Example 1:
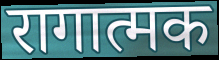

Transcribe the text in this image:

रागात्मक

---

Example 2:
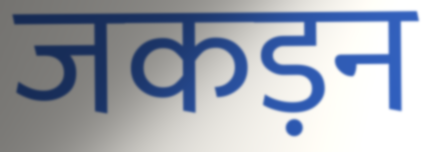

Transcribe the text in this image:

जकड़न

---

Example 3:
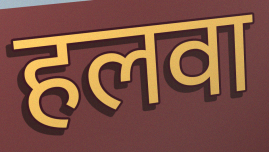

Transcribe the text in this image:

हलवा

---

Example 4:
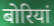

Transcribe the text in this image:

बोरियां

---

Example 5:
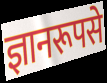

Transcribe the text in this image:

ज्ञानरूपसे